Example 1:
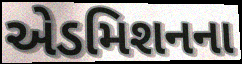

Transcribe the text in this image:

એડમિશનના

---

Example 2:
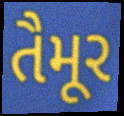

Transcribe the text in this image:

તૈમૂર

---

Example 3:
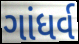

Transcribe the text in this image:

ગાંધર્વ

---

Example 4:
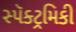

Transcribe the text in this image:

સ્પૅક્ટ્રમિકી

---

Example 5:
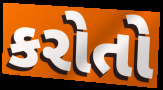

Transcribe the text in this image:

કરોતો